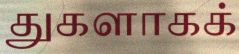
துகளாகக்